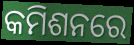
କମିଶନରେ